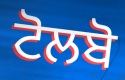
ਟੋਲਬੋ